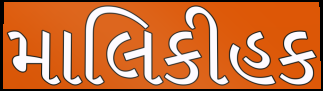
માલિકીહક